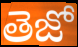
తెజో